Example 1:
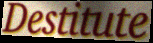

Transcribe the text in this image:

Destitute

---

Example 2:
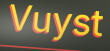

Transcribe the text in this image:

Vuyst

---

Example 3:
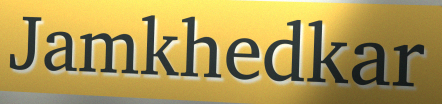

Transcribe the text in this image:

Jamkhedkar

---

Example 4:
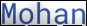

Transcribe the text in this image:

Mohan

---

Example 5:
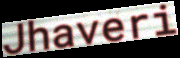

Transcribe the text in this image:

Jhaveri